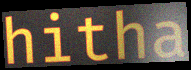
hitha